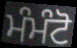
ਮੰਮੰਟੋ